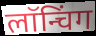
लॉन्चिंग